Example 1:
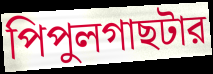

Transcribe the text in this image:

পিপুলগাছটার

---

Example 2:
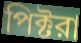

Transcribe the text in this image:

পিক্টরা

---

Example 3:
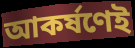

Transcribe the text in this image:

আকর্ষণেই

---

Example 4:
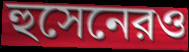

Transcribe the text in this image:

হুসেনেরও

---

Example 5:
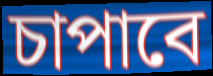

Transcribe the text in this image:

চাপাবে